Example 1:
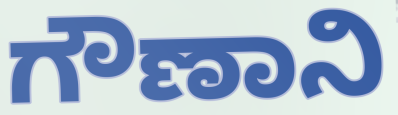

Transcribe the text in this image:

ಗೌಣಾನಿ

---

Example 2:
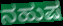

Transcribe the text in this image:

ನಹುಷ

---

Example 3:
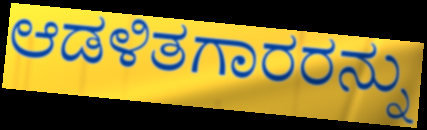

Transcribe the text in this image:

ಆಡಳಿತಗಾರರನ್ನು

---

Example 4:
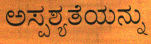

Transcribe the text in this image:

ಅಸ್ಪಶ್ಯತೆಯನ್ನು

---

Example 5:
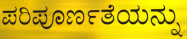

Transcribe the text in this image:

ಪರಿಪೂರ್ಣತೆಯನ್ನು